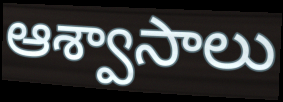
ఆశ్వాసాలు